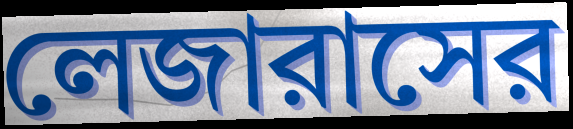
লেজারাসের